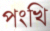
পংখি